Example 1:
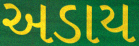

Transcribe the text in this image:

અડાય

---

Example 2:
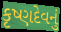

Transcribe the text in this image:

કૃષ્ણદેવનું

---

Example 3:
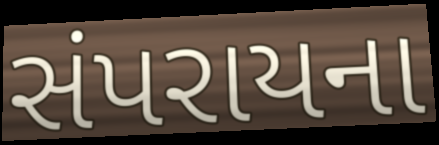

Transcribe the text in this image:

સંપરાયના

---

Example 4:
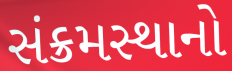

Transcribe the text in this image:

સંક્રમસ્થાનો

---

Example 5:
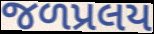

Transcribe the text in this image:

જળપ્રલય